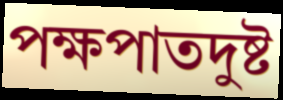
পক্ষপাতদুষ্ট